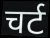
चर्ट